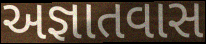
અજ્ઞાતવાસ